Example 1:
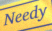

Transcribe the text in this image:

Needy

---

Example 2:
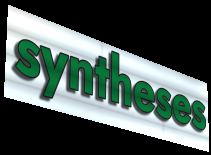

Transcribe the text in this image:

syntheses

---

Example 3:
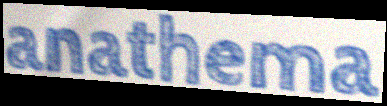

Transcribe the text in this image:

anathema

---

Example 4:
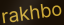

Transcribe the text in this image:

rakhbo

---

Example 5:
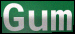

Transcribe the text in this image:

Gum